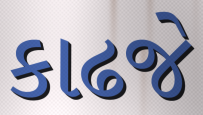
કાઢજે